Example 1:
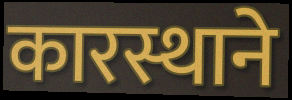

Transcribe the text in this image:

कारस्थाने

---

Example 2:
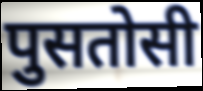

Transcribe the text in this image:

पुसतोसी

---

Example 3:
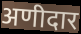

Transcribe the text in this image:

अणीदार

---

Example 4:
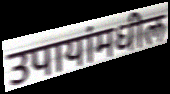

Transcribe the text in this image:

उपायांमधील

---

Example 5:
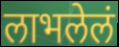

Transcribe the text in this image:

लाभलेलं